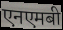
एनएमबी